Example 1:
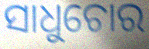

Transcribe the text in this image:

ସାଧୁଚୋର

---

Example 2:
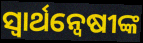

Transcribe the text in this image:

ସ୍ୱାର୍ଥନ୍ୱେଷୀଙ୍କ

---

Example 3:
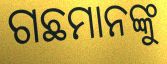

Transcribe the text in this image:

ଗଛମାନଙ୍କୁ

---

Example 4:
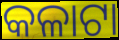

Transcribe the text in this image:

କଳାଟା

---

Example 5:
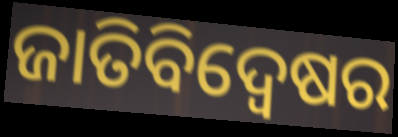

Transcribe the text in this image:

ଜାତିବିଦ୍ୱେଷର